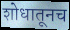
शोधातूनच